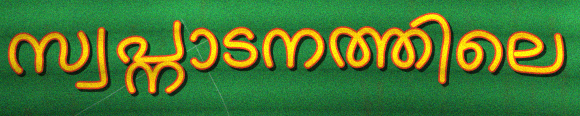
സ്വപ്നാടനത്തിലെ